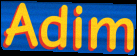
Adim